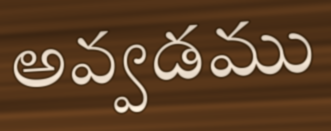
అవ్వడము